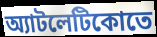
অ্যাটলেটিকোতে